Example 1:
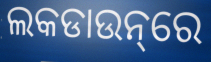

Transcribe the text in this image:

ଲକଡାଉନ୍‌ରେ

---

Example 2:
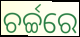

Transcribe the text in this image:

ଚର୍ଚ୍ଚରେ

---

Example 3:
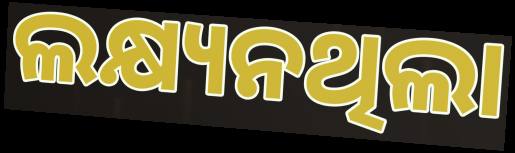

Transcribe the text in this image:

ଲକ୍ଷ୍ୟନଥିଲା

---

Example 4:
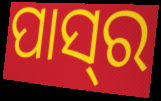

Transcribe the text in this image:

ପାସ୍‍ର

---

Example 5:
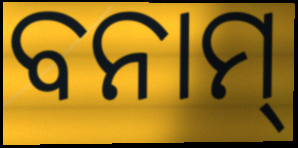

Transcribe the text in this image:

ବନାମ୍